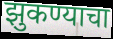
झुकण्याचा